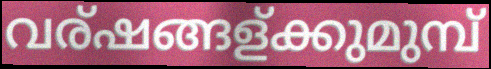
വര്ഷങ്ങള്ക്കുമുമ്പ്